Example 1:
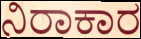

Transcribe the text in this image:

ನಿರಾಕಾರ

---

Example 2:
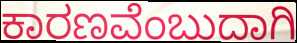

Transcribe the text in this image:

ಕಾರಣವೆಂಬುದಾಗಿ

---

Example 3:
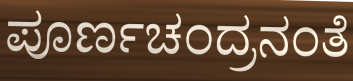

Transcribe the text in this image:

ಪೂರ್ಣಚಂದ್ರನಂತೆ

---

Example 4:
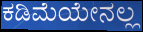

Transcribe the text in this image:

ಕಡಿಮೆಯೇನಲ್ಲ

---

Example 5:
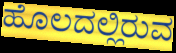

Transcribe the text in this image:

ಹೊಲದಲ್ಲಿರುವ